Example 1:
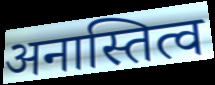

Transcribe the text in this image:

अनास्तित्व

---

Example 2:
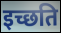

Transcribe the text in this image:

इच्छति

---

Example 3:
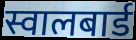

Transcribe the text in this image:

स्वालबार्ड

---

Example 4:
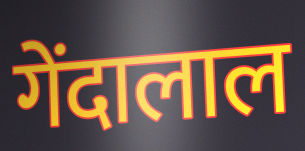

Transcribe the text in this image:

गेंदालाल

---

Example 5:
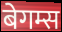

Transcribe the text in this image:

बेगम्स